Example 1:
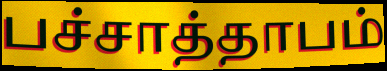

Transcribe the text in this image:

பச்சாத்தாபம்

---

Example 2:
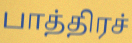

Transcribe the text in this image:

பாத்திரச்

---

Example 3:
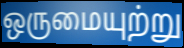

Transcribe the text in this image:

ஒருமையுற்று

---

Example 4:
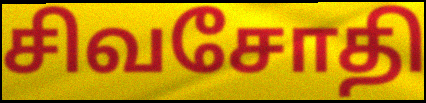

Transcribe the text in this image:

சிவசோதி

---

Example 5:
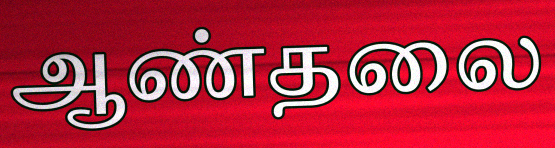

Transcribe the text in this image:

ஆண்தலை